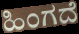
ಹಿಂಗದೆ